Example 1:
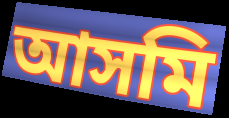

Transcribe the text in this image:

আসমি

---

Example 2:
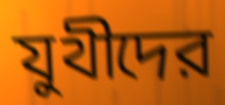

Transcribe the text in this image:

যুথীদের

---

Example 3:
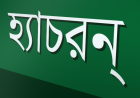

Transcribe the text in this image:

হ্যাচরন্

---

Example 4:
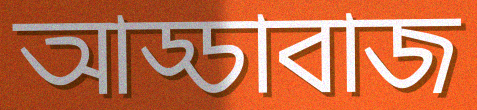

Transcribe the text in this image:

আড্ডাবাজ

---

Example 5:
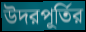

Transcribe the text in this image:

উদরপূর্তির